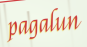
pagalun